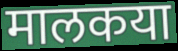
मालकया